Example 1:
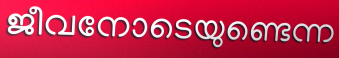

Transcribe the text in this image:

ജീവനോടെയുണ്ടെന്ന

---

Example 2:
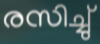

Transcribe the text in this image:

രസിച്ചു്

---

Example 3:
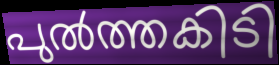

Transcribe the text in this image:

പുൽത്തകിടി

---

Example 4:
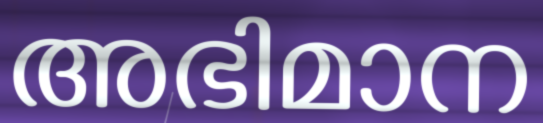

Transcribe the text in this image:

അഭിമാന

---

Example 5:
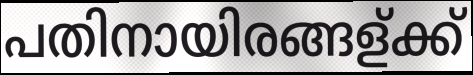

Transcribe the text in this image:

പതിനായിരങ്ങള്ക്ക്